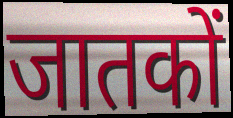
जातकों